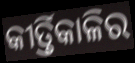
କୀର୍ତ୍ତିକାଳିର